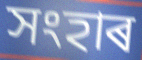
সংহাৰ